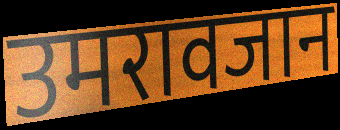
उमरावजान